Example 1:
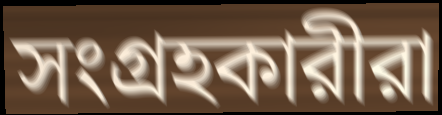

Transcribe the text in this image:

সংগ্রহকারীরা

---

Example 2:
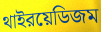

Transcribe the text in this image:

থাইরয়েডিজম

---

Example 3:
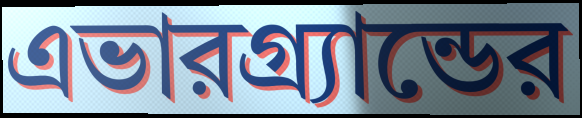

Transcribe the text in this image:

এভারগ্র্যান্ডের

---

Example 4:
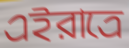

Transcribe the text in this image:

এইরাত্রে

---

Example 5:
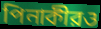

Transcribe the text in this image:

পিনাকীরও